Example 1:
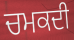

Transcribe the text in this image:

ਚਮਕਦੀ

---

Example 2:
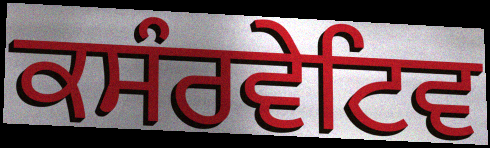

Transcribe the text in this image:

ਕਸੰਰਵੇਟਿਵ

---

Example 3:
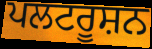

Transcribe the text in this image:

ਪਲਟਰੂਸ਼ਨ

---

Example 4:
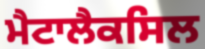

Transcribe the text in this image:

ਮੈਟਾਲੈਕਸਿਲ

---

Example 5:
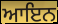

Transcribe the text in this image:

ਆਇਨ